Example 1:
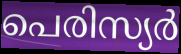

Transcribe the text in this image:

പെരിസ്യർ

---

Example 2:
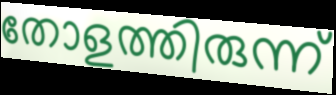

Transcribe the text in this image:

തോളത്തിരുന്ന്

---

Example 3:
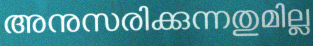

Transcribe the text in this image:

അനുസരിക്കുന്നതുമില്ല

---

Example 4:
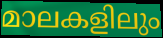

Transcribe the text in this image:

മാലകളിലും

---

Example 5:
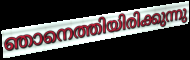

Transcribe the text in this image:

ഞാനെത്തിയിരിക്കുന്നു